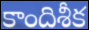
కాందిశీక